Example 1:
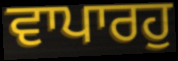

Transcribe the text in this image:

ਵਾਪਾਰਹੁ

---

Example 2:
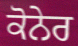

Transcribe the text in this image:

ਕੋਨੇਰ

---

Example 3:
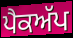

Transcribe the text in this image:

ਪੈਕਅੱਪ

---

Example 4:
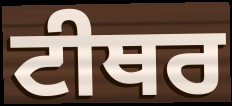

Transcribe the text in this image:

ਟੀਥਰ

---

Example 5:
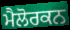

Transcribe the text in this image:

ਮੈਲੋਰਕਨ